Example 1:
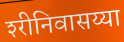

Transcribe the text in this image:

श्रीनिवासय्या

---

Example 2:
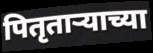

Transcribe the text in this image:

पितृताऱ्याच्या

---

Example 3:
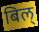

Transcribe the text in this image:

बिल्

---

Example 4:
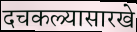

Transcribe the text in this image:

दचकल्यासारखे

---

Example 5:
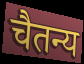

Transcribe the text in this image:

चैतन्य